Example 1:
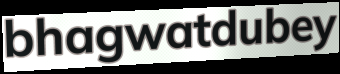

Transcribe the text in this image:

bhagwatdubey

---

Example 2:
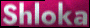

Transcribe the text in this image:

Shloka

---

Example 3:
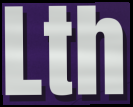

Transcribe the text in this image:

Lth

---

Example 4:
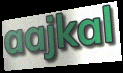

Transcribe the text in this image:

aajkal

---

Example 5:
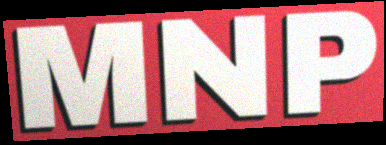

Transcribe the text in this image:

MNP